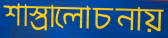
শাস্ত্রালোচনায়